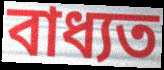
বাধ্যত